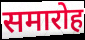
समारोह